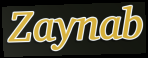
Zaynab